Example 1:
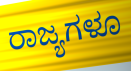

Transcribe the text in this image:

ರಾಜ್ಯಗಳೂ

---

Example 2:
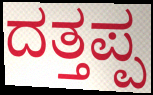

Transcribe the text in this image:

ದತ್ತಪ್ಪ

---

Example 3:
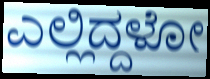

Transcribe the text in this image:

ಎಲ್ಲಿದ್ದಳೋ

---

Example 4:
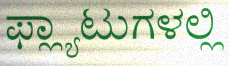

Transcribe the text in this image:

ಫ್ಲ್ಯಾಟುಗಳಲ್ಲಿ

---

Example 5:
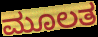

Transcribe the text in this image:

ಮೂಲತ